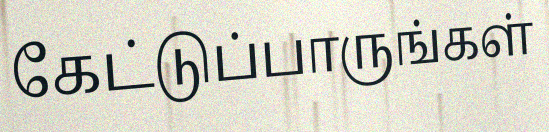
கேட்டுப்பாருங்கள்